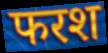
फरश